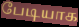
பேடியாக